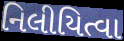
નિલીયિત્વા